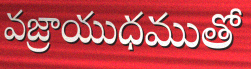
వజ్రాయుధముతో